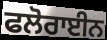
ਫਲੋਰਾਈਨ